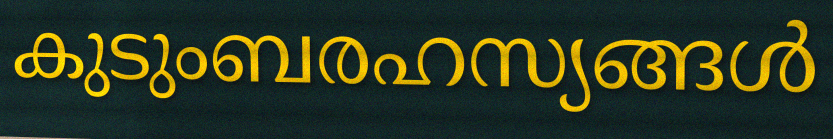
കുടുംബരഹസ്യങ്ങൾ